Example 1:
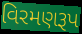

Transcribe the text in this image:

વિરમણરૂપ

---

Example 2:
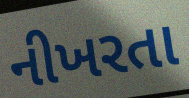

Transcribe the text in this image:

નીખરતા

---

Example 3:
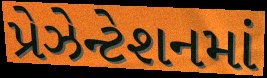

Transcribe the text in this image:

પ્રેઝેન્ટેશનમાં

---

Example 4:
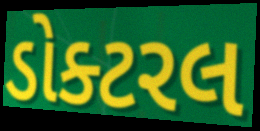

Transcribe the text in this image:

ડોક્ટરલ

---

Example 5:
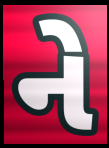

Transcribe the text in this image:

ને